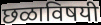
छळाविषयी